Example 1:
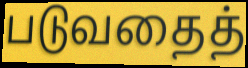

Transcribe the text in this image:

படுவதைத்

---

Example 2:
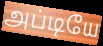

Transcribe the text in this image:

அப்டியே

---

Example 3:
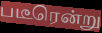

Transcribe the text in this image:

படீரென்று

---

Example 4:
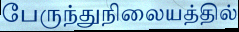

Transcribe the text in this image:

பேருந்துநிலையத்தில்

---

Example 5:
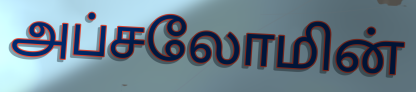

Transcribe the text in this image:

அப்சலோமின்